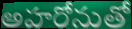
అహరోనుతో